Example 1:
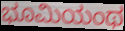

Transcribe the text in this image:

ಭೂಮಿಯಂಥ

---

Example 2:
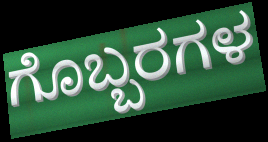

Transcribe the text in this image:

ಗೊಬ್ಬರಗಳ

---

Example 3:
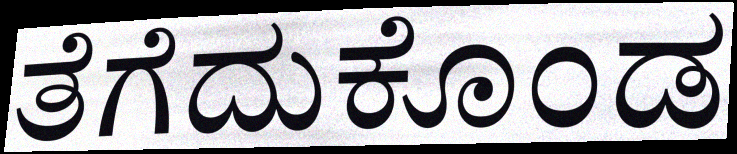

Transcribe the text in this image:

ತೆಗೆದುಕೊಂಡ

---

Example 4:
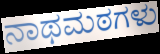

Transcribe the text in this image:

ನಾಥಮಠಗಳು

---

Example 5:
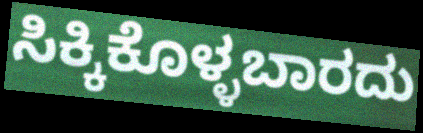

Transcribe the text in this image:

ಸಿಕ್ಕಿಕೊಳ್ಳಬಾರದು